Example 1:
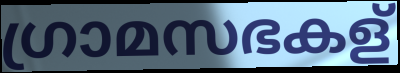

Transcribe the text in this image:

ഗ്രാമസഭകള്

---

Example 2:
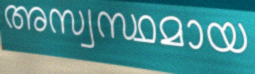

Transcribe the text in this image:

അസ്വസ്ഥമായ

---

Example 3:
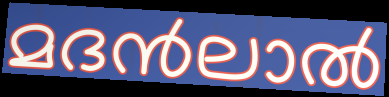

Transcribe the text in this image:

മദൻലാൽ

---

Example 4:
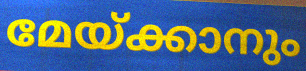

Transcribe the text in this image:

മേയ്ക്കാനും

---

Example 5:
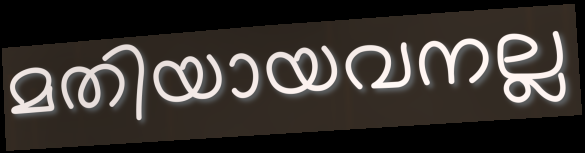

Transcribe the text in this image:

മതിയായവനല്ല